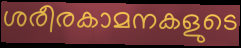
ശരീരകാമനകളുടെ